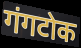
गंगटोक